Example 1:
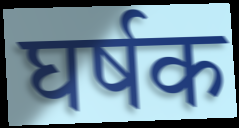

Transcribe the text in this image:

घर्षक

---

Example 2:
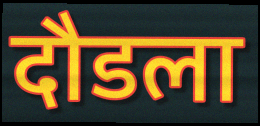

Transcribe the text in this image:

दौडला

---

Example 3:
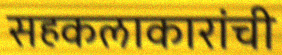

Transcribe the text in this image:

सहकलाकारांची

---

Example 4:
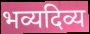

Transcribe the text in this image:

भव्यदिव्य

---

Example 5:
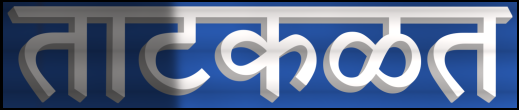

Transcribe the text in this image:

ताटकळत